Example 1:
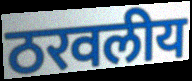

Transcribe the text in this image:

ठरवलीय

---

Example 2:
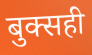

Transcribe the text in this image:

बुक्सही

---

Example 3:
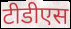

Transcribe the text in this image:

टीडीएस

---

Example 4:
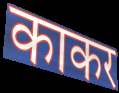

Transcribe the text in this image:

काकर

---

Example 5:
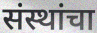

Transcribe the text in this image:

संस्थांचा